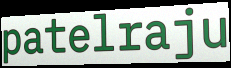
patelraju